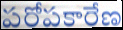
పరోపకారేణ